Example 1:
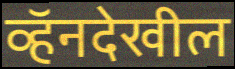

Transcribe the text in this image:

व्हॅनदेखील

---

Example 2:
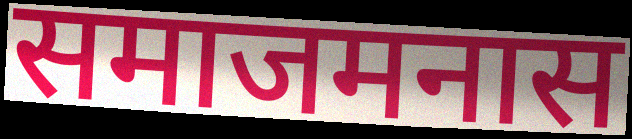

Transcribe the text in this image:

समाजमनास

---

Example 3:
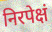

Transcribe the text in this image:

निरपेक्षं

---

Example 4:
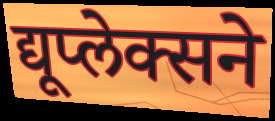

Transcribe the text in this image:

द्यूप्लेक्सने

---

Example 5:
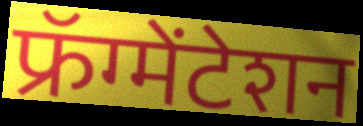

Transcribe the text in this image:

फ्रॅग्मेंटेशन